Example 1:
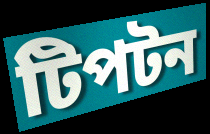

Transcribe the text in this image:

টিপটন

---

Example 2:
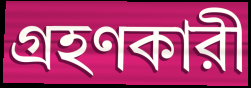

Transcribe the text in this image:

গ্রহণকারী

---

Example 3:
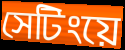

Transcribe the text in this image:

সেটিংয়ে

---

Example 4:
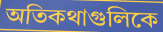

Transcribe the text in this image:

অতিকথাগুলিকে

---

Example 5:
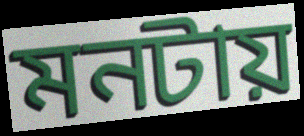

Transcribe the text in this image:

মনটায়